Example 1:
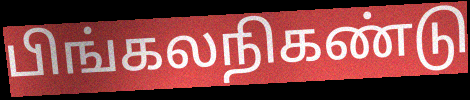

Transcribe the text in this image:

பிங்கலநிகண்டு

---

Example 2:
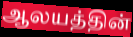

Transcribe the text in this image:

ஆலயத்தின்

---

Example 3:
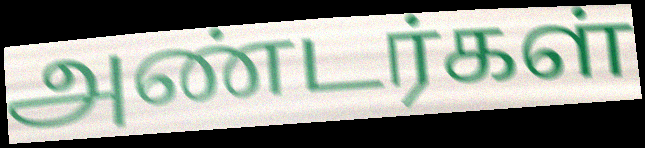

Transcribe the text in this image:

அண்டர்கள்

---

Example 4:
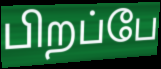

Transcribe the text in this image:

பிறப்பே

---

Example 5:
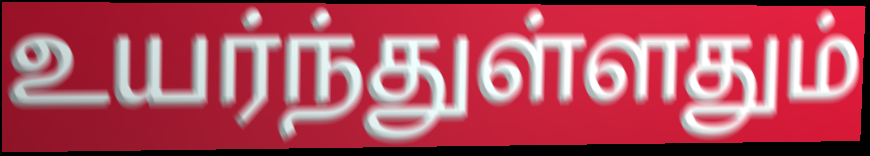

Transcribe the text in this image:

உயர்ந்துள்ளதும்